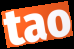
tao